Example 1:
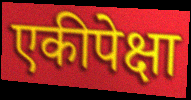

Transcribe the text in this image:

एकीपेक्षा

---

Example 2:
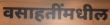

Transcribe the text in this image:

वसाहतींमधील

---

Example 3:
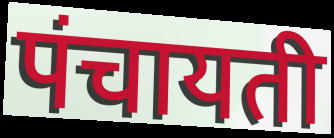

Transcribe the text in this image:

पंचायती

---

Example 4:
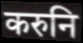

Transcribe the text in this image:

करुनि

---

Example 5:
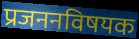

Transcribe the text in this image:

प्रजननविषयक